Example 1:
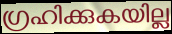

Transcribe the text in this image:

ഗ്രഹിക്കുകയില്ല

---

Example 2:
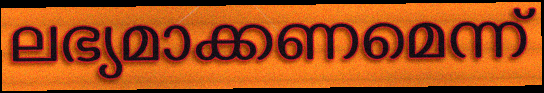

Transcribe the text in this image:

ലഭ്യമാക്കണമെന്ന്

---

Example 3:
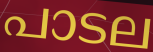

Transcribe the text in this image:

പാടല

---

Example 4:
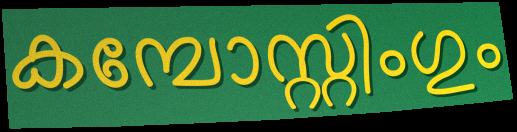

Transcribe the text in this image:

കമ്പോസ്റ്റിംഗും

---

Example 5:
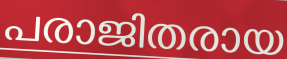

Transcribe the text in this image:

പരാജിതരായ